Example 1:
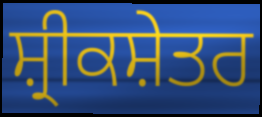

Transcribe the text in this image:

ਸ਼੍ਰੀਕਸ਼ੇਤਰ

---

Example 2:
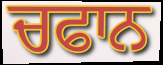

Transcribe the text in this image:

ਚਫਾਨ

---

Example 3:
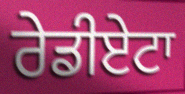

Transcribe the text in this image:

ਰੇਡੀਏਟਾ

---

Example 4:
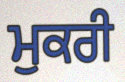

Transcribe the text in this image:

ਮੁਕਰੀ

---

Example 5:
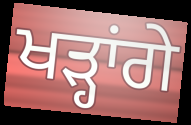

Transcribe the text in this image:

ਖੜ੍ਹਾਂਗੇ